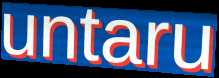
untaru